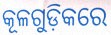
କୂଳଗୁଡ଼ିକରେ